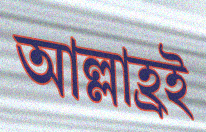
আল্লাহ্রই